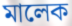
মালেক